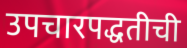
उपचारपद्धतीची